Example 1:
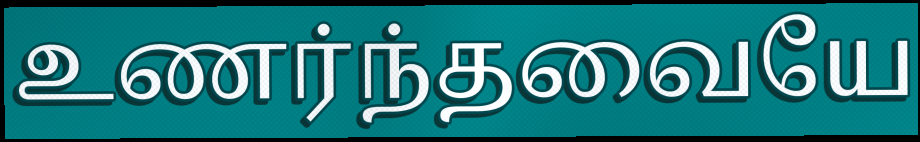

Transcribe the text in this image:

உணர்ந்தவையே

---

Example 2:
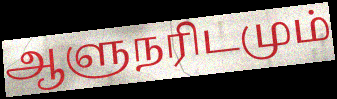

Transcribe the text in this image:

ஆளுநரிடமும்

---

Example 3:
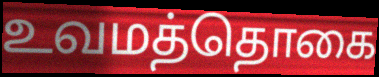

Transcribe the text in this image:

உவமத்தொகை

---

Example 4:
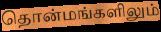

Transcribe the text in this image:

தொன்மங்களிலும்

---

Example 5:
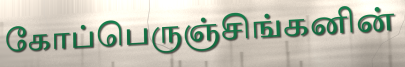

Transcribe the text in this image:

கோப்பெருஞ்சிங்கனின்